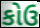
કોઉ